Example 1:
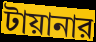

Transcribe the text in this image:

টায়ানার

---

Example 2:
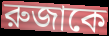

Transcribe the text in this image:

রুজাকে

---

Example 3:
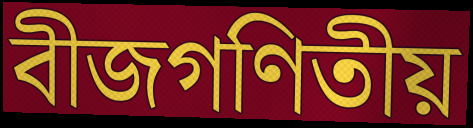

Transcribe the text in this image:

বীজগণিতীয়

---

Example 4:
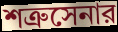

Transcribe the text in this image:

শত্রুসেনার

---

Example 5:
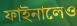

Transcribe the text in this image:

ফাইনালেও